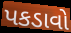
પકડાવો